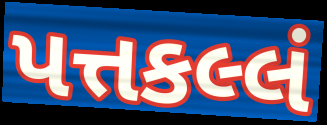
પત્તકલ્લં